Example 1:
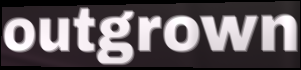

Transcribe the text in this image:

outgrown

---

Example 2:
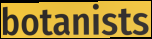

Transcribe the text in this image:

botanists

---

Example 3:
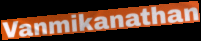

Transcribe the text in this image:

Vanmikanathan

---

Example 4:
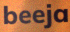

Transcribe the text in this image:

beeja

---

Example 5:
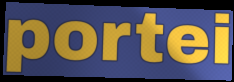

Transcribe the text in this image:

portei